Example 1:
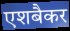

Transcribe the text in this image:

एशबैकर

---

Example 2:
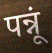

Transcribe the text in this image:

पन्नूं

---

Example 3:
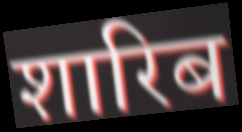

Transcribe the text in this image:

शारिब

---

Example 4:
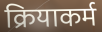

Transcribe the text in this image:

क्रियाकर्म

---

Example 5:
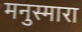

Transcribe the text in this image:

मनुस्मारा